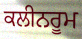
ਕਲੀਨਰੂਮ